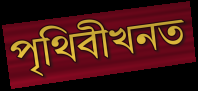
পৃথিবীখনত